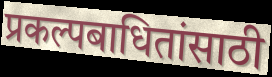
प्रकल्पबाधितांसाठी